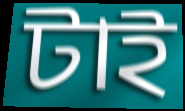
টাই